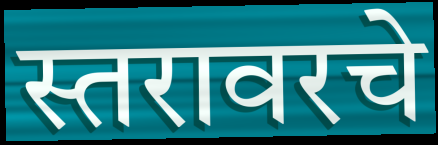
स्तरावरचे